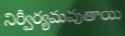
నిర్వీర్యమవుతాయి